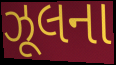
ઝૂલના